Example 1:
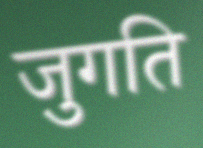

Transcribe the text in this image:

जुगति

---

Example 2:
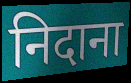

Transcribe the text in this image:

निदाना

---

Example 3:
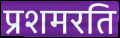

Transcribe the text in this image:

प्रशमरति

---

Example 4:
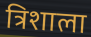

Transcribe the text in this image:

त्रिशाला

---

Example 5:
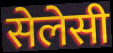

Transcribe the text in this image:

सेलेसी